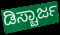
ಡಿಸ್ಚಾರ್ಜ